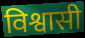
विश्वासी